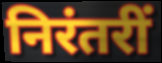
निरंतरीं